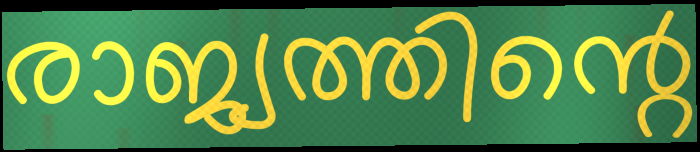
രാജ്യത്തിന്റെ